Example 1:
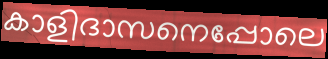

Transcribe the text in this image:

കാളിദാസനെപ്പോലെ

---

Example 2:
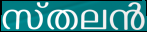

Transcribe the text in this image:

സ്‌തലൻ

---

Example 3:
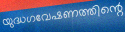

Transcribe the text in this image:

യുദ്ധഗവേഷണത്തിന്റെ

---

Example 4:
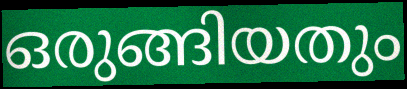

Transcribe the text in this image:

ഒരുങ്ങിയതും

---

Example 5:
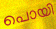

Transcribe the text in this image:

പൊയി